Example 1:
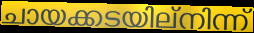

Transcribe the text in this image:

ചായക്കടയില്നിന്ന്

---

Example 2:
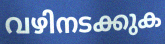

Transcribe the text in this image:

വഴിനടക്കുക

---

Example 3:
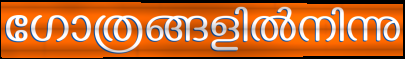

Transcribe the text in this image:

ഗോത്രങ്ങളിൽനിന്നു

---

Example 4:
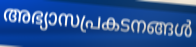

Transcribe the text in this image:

അഭ്യാസപ്രകടനങ്ങൾ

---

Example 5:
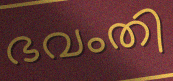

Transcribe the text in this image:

ഭവംതി